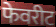
फेवरीट